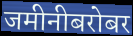
जमीनीबरोबर